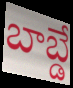
బాబ్డే